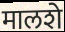
मालशे